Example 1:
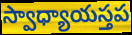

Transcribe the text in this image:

స్వాధ్యాయస్తప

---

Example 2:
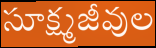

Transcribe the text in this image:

సూక్ష్మజీవుల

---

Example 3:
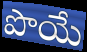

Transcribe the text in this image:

పొయే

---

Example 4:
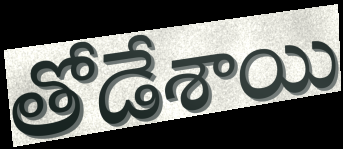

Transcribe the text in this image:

తోడేశాయి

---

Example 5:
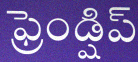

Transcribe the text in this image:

ఫ్రెండ్షిప్